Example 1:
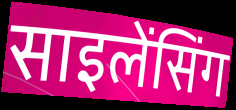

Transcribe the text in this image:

साइलेंसिंग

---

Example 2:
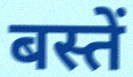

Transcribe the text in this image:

बस्तें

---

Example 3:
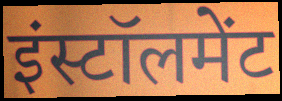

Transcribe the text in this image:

इंस्टॉलमेंट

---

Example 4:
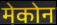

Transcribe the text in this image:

मेकोन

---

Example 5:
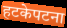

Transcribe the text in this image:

हटकेपटना